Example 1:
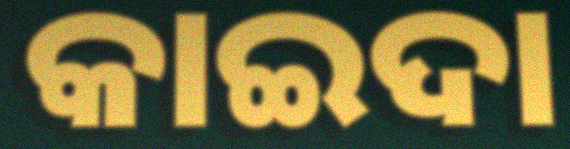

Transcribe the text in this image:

କାଇଦା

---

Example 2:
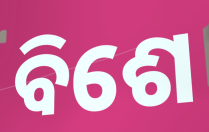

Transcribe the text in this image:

ବିଶେ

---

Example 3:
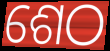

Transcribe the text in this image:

ଶେଠ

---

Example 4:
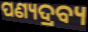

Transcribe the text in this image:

ପଣ୍ୟଦ୍ରବ୍ୟ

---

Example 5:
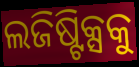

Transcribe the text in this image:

ଲଜିଷ୍ଟିକ୍ସକୁ